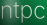
ntpc